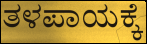
ತಳಪಾಯಕ್ಕೆ